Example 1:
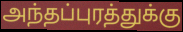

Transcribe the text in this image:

அந்தப்புரத்துக்கு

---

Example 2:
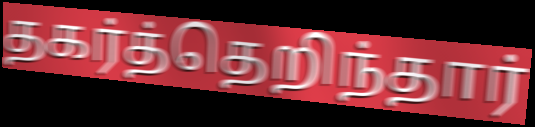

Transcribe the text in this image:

தகர்த்தெறிந்தார்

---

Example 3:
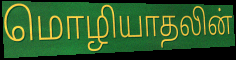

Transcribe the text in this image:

மொழியாதலின்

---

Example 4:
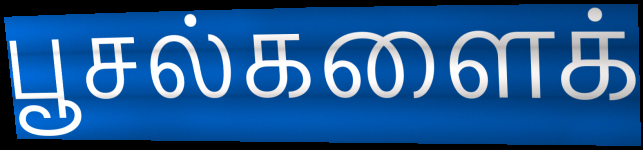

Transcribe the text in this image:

பூசல்களைக்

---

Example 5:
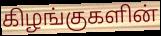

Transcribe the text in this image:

கிழங்குகளின்